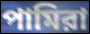
পামিরা